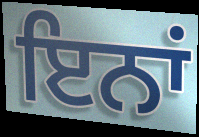
ਇਨਾਂ